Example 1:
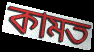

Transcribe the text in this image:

কামত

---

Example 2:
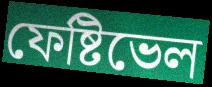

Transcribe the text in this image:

ফেষ্টিভেল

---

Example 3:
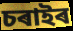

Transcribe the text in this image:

চৰাইৰ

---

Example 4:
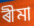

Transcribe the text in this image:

ৰীমা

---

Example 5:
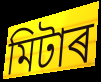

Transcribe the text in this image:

মিটাৰ